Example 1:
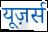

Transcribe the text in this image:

यूज़र्स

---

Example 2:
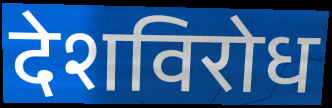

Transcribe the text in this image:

देशविरोध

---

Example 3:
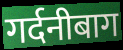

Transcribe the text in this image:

गर्दनीबाग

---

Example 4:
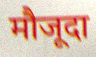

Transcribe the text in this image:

मौजूदा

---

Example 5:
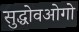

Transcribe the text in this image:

सुद्धोवओगो